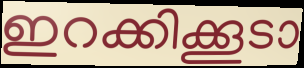
ഇറക്കിക്കൂടാ